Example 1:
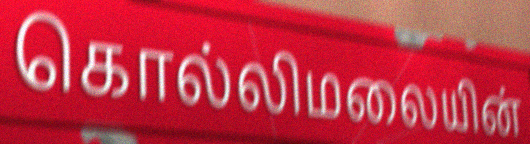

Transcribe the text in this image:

கொல்லிமலையின்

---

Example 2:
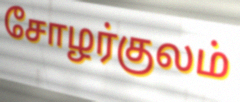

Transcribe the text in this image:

சோழர்குலம்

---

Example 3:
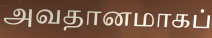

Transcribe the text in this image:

அவதானமாகப்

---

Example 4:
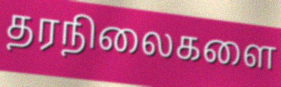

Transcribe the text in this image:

தரநிலைகளை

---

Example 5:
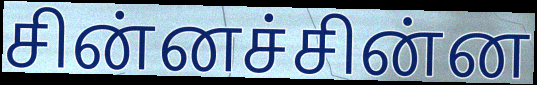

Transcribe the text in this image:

சின்னச்சின்ன